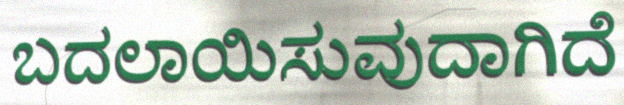
ಬದಲಾಯಿಸುವುದಾಗಿದೆ